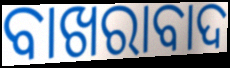
ବାଖରାବାଦ